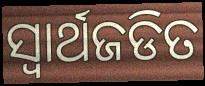
ସ୍ଵାର୍ଥଜଡିତ